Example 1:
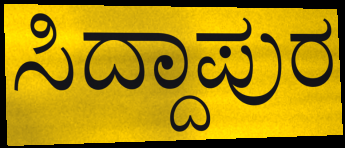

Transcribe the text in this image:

ಸಿದ್ದಾಪುರ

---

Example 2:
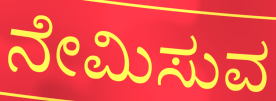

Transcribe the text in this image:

ನೇಮಿಸುವ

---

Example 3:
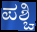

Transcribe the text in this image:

ಪಶ್ಚಿ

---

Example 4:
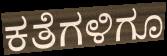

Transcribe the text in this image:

ಕತೆಗಳಿಗೂ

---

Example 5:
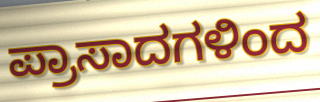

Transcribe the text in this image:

ಪ್ರಾಸಾದಗಳಿಂದ